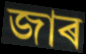
জাৰ